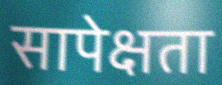
सापेक्षता